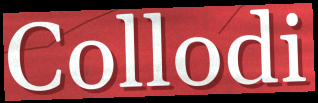
Collodi